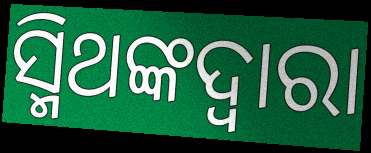
ସ୍ମିଥଙ୍କଦ୍ୱାରା